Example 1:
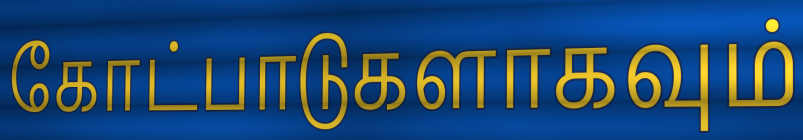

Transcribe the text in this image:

கோட்பாடுகளாகவும்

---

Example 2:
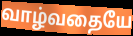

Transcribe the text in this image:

வாழ்வதையே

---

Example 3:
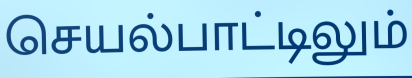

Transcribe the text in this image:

செயல்பாட்டிலும்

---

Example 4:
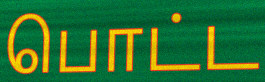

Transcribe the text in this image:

பொட்ட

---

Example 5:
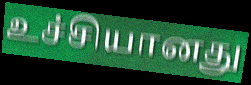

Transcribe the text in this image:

உச்சியானது